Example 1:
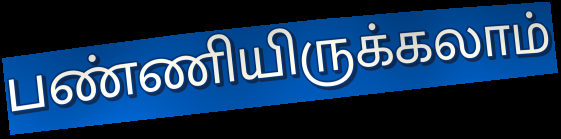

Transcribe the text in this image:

பண்ணியிருக்கலாம்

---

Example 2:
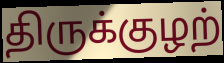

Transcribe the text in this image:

திருக்குழற்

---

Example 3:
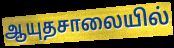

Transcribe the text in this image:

ஆயுதசாலையில்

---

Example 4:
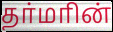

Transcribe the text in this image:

தர்மரின்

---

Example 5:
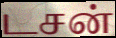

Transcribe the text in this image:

டசன்